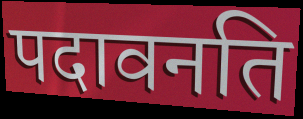
पदावनति